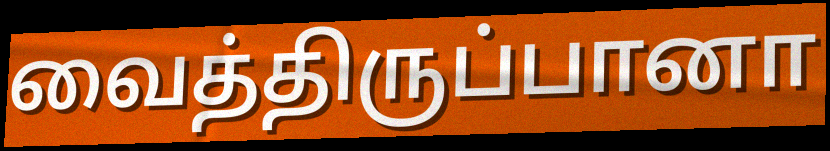
வைத்திருப்பானா